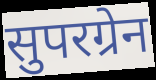
सुपरग्रेन